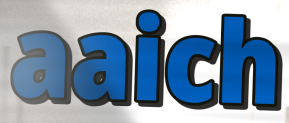
aaich